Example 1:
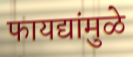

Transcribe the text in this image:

फायद्यांमुळे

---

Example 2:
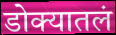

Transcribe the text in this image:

डोक्यातलं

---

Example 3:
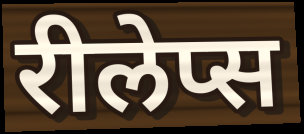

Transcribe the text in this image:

रीलेप्स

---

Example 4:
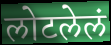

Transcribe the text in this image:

लोटलेलं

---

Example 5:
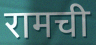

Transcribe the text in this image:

रामची